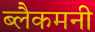
ब्‍लैकमनी